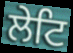
ਲੇਟਿ